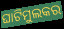
ଘାଟିମୁଲକର